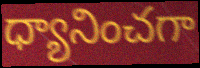
ధ్యానించగా